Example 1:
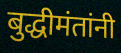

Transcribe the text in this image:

बुद्धीमंतांनी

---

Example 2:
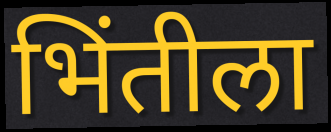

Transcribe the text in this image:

भिंतीला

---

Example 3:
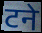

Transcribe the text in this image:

टने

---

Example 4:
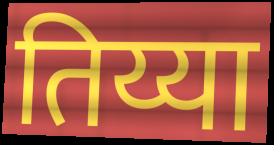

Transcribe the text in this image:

तिय्या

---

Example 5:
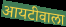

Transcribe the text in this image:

आयटीवाला